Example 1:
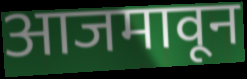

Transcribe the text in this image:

आजमावून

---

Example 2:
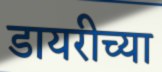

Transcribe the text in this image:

डायरीच्या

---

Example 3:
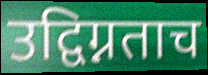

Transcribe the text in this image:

उद्विग्नताच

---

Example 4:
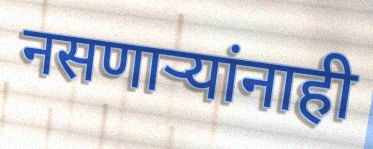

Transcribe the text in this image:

नसणार्‍यांनाही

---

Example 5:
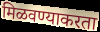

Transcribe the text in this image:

मिळवण्याकरता